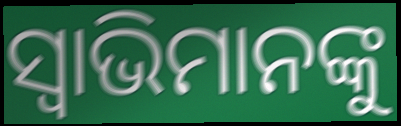
ସ୍ୱାଭିମାନଙ୍କୁ